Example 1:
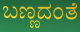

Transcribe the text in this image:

ಬಣ್ಣದಂತೆ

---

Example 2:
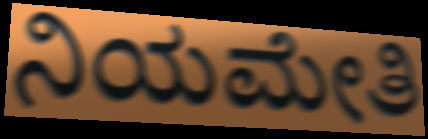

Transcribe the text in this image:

ನಿಯಮೇತಿ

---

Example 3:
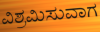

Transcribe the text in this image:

ವಿಶ್ರಮಿಸುವಾಗ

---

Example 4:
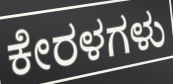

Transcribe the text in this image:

ಕೇರಳಗಳು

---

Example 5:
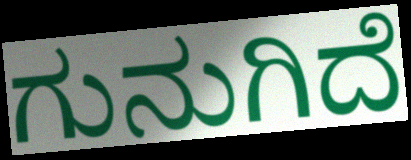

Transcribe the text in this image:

ಗುನುಗಿದೆ